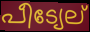
പീട്യേല്